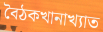
বৈঠকখানাখ্যাত